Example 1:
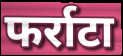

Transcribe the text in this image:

फर्राटा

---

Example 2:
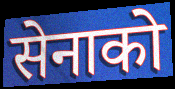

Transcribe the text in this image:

सेनाको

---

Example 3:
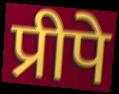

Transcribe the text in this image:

प्रीपे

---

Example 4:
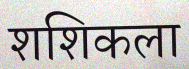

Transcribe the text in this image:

शशिकला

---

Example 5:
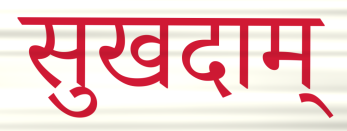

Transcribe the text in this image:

सुखदाम्